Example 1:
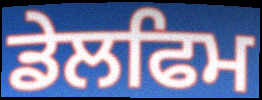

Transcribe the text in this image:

ਡੇਲਫਿਮ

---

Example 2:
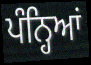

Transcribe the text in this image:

ਪੰਨ੍ਹਿਆਂ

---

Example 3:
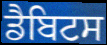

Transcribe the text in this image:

ਡੈਬਿਟਸ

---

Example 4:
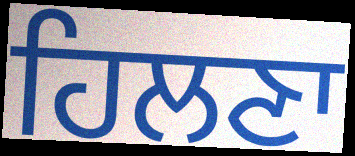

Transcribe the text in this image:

ਹਿਲਣਾ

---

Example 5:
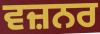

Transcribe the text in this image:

ਵਜ਼ਨਰ